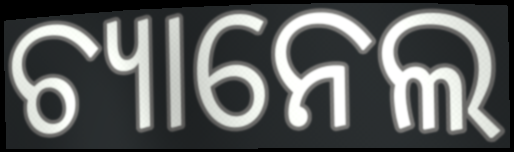
ଚ୍ୟାନେଲ